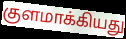
குளமாக்கியது